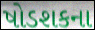
ષોડશકના